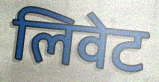
लिवेट